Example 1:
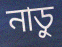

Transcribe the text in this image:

নাডু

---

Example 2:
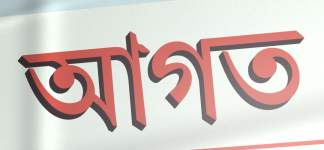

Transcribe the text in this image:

আগত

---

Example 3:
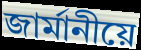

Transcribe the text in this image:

জাৰ্মানীয়ে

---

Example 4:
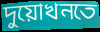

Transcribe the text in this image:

দুয়োখনতে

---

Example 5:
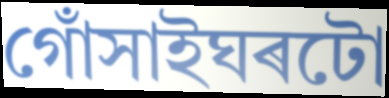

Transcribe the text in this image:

গোঁসাইঘৰটো